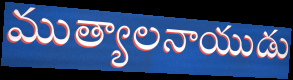
ముత్యాలనాయుడు